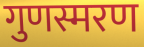
गुणस्मरण